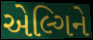
એલ્ગિને